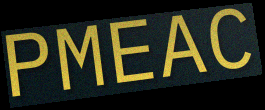
PMEAC